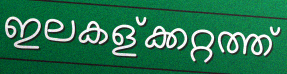
ഇലകള്ക്കറ്റത്ത്